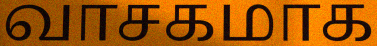
வாசகமாக